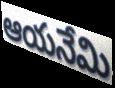
ఆయనేమి